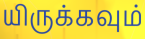
யிருக்கவும்